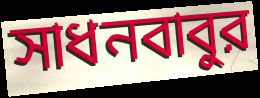
সাধনবাবুর